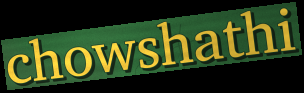
chowshathi